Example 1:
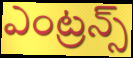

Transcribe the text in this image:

ఎంట్రన్స్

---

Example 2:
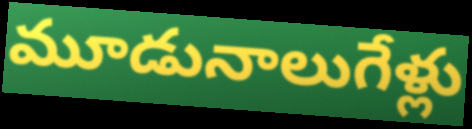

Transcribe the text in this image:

మూడునాలుగేళ్లు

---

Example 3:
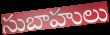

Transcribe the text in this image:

సుబాహులు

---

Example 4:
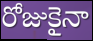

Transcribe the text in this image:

రోజుకైనా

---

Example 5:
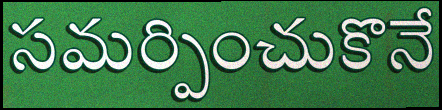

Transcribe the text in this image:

సమర్పించుకొనే